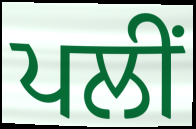
ਪਲੀਂ